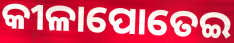
କୀଳାପୋତେଇ